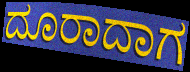
ದೂರಾದಾಗ